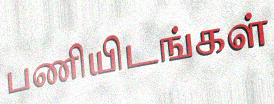
பணியிடங்கள்